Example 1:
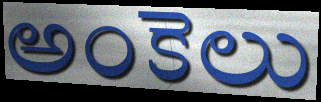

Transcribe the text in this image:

అంకెలు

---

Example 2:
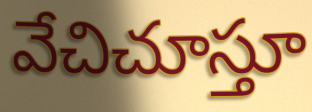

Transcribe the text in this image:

వేచిచూస్తూ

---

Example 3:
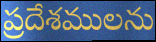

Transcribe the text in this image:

ప్రదేశములను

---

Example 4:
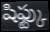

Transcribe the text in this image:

షిఫ్ట్కు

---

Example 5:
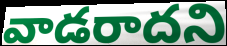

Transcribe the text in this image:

వాడరాదని